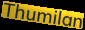
Thumilan